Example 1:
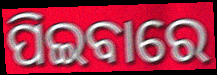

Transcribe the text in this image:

ପିଇବାରେ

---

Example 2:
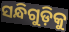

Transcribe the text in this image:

ସନ୍ଧିଗୁଡ଼ିକୁ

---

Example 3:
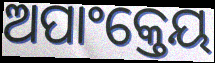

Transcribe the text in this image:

ଅପାଂକ୍ତେୟ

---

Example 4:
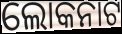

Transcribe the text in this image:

ଲୋକନାଟ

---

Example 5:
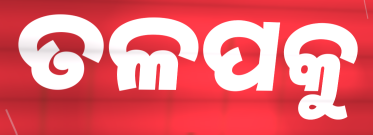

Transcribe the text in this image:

ତଳପକୁ